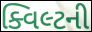
ક્વિલ્ટની